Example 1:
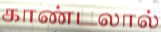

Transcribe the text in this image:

காண்டலால்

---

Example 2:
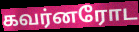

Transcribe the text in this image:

கவர்னரோட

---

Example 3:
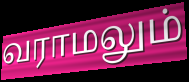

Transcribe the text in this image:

வராமலும்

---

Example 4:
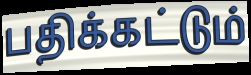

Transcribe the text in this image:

பதிக்கட்டும்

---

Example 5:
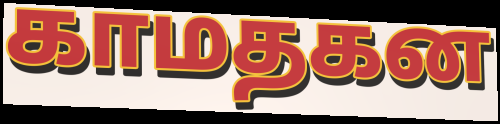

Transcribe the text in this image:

காமதகன